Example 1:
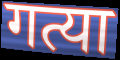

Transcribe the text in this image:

गत्या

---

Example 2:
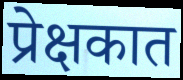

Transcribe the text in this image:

प्रेक्षकात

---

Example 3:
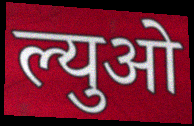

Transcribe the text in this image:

ल्युओ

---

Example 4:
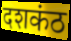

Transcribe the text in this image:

दशकंठ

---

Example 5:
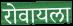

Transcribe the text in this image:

रोवायला